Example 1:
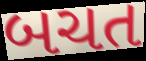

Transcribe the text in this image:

બચત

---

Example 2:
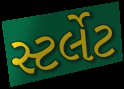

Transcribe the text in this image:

સ્ટર્લેટ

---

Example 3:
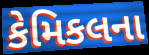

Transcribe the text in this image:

કેમિકલના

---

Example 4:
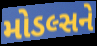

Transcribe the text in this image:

મોડલ્સને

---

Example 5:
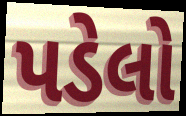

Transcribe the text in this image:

પડેલો